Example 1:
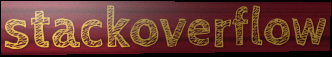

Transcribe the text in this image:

stackoverflow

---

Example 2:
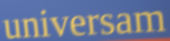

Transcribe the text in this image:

universam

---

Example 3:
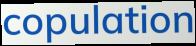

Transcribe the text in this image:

copulation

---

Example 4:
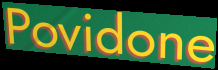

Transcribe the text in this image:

Povidone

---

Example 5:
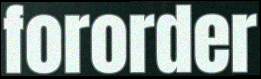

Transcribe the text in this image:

fororder